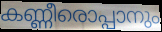
കണ്ണീരൊപ്പാനും